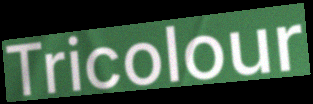
Tricolour